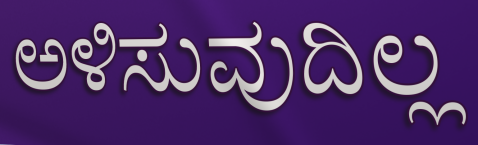
ಅಳಿಸುವುದಿಲ್ಲ